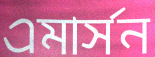
এমার্সন